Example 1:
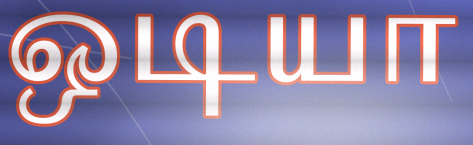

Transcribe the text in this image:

ஒடியா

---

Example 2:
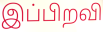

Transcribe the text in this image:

இப்பிறவி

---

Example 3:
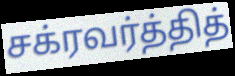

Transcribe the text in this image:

சக்ரவர்த்தித்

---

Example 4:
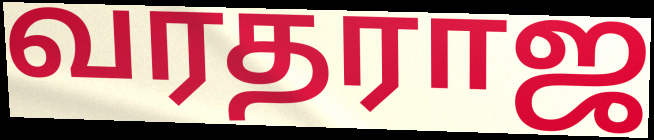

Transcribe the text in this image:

வரதராஜ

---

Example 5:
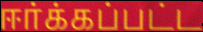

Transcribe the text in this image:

ஈர்க்கப்பட்ட